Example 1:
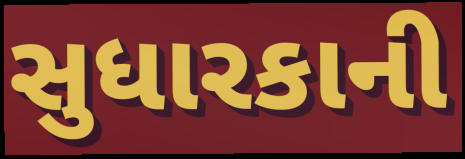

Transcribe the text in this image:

સુધારકાની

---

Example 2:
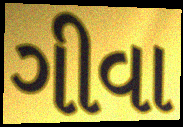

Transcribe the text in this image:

ગીવા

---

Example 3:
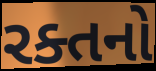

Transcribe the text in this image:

રક્તનો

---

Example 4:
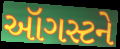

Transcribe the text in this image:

ઑગસ્ટને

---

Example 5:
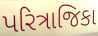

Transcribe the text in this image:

પરિત્રાજિકા